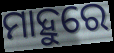
ମାହୁରେ